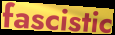
fascistic